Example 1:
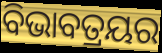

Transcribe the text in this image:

ବିଭାବତ୍ରୟର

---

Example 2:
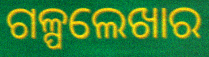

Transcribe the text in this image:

ଗଳ୍ପଲେଖାର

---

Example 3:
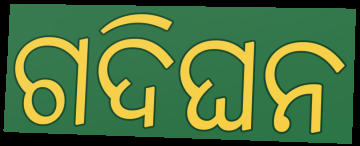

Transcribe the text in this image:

ଗଦିଘନ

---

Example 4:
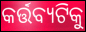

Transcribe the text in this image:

କର୍ତ୍ତବ୍ୟଟିକୁ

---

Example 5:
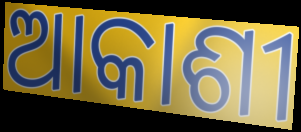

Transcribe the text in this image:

ଆକାଶୀ